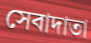
সেবাদাতা